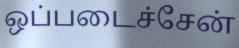
ஒப்படைச்சேன்